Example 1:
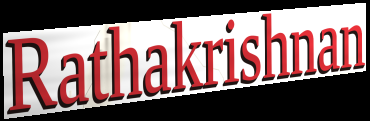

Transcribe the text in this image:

Rathakrishnan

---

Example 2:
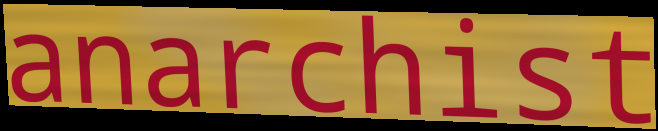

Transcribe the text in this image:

anarchist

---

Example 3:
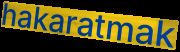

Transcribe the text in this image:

hakaratmak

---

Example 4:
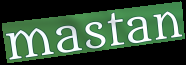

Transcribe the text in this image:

mastan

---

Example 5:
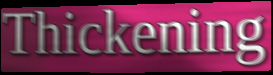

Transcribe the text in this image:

Thickening